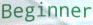
Beginner